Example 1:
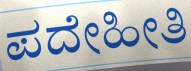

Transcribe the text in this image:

ಪದೇಹೀತಿ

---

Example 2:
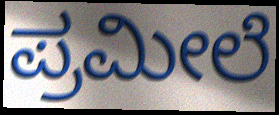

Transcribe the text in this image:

ಪ್ರಮೀಲೆ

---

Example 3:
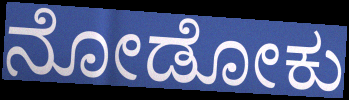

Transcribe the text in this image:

ನೋಡೋಕು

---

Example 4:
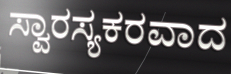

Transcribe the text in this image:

ಸ್ವಾರಸ್ಯಕರವಾದ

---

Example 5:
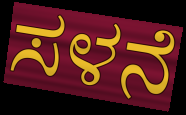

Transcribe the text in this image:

ಸಳನೆ